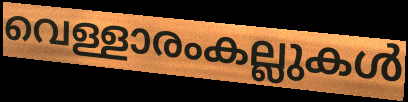
വെള്ളാരംകല്ലുകൾ